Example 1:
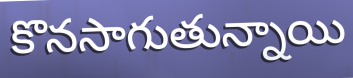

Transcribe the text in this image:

కొనసాగుతున్నాయి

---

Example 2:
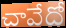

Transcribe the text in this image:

చావేదో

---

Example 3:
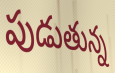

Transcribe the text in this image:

పుడుతున్న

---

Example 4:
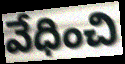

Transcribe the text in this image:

వేధించి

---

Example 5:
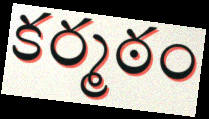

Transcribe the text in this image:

కర్మఠం